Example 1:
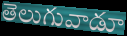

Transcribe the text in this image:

తెలుగువాడూ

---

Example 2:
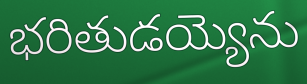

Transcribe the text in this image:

భరితుడయ్యెను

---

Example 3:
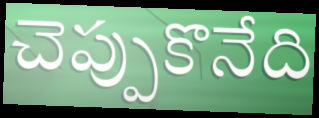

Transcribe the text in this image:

చెప్పుకొనేది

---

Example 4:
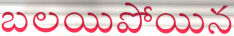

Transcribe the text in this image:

బలయిపోయిన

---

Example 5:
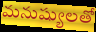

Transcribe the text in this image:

మనుష్యులతో